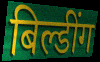
बिल्डींग